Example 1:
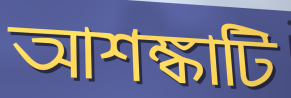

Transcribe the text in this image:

আশঙ্কাটি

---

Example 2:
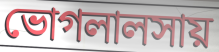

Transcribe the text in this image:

ভোগলালসায়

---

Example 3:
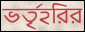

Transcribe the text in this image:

ভর্তৃহরির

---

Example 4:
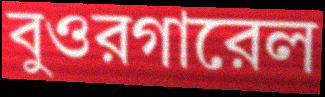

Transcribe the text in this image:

বুওরগারেল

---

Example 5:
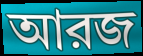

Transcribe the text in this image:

আরজ